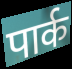
पार्क